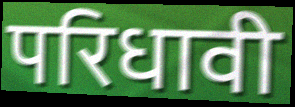
परिधावी